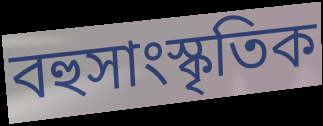
বহুসাংস্কৃতিক